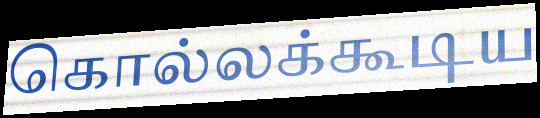
கொல்லக்கூடிய